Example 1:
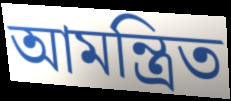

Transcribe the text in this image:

আমন্ত্ৰিত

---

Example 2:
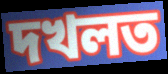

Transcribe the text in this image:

দখলত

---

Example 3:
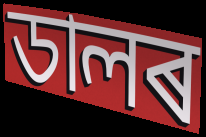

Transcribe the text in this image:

ডালৰ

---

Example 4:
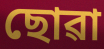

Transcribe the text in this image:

ছোৱা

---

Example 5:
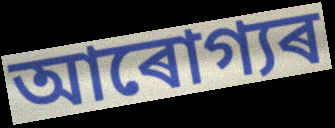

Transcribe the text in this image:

আৰোগ্যৰ